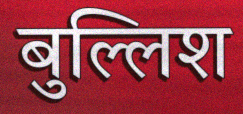
बुल्लिश